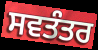
ਸਵਤੰਤਰ